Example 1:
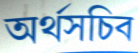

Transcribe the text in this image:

অর্থসচিব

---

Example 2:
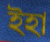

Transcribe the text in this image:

ইহা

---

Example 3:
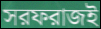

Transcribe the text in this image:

সরফরাজই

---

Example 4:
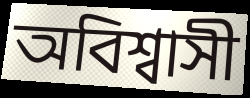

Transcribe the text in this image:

অবিশ্বাসী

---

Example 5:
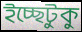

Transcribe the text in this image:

ইচ্ছেটুকু